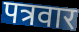
पत्रवार